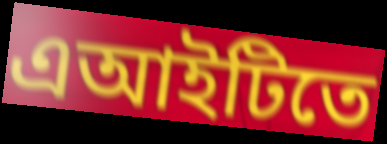
এআইটিতে